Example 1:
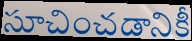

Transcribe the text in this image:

సూచించడానికీ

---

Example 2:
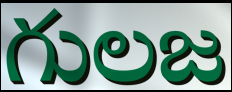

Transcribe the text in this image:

గులజ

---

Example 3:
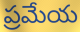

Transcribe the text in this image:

ప్రమేయ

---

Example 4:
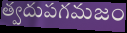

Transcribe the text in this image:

త్వదుపగమజం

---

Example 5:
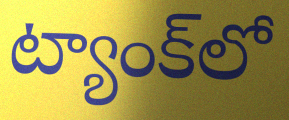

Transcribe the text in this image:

ట్యాంక్‌లో